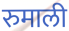
रुमाली